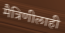
मैत्रिणीलाही